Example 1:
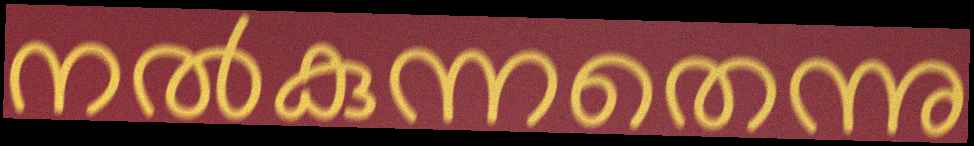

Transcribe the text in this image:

നൽകുന്നതെന്നു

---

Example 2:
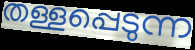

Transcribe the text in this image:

തള്ളപ്പെടുന്ന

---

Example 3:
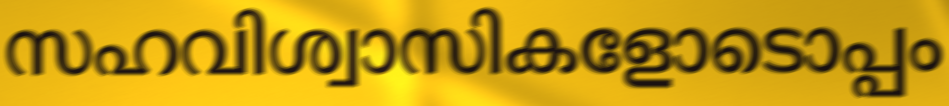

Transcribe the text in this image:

സഹവിശ്വാസികളോടൊപ്പം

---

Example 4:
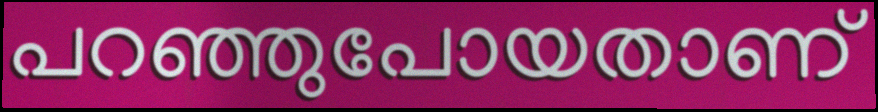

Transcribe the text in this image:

പറഞ്ഞുപോയതാണ്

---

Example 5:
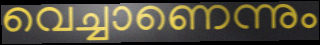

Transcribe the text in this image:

വെച്ചാണെന്നും